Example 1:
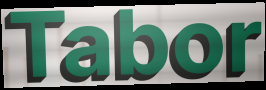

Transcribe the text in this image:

Tabor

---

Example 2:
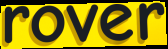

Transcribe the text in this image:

rover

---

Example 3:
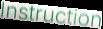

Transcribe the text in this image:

Instruction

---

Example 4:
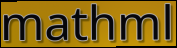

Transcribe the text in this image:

mathml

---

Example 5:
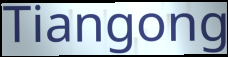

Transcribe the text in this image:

Tiangong